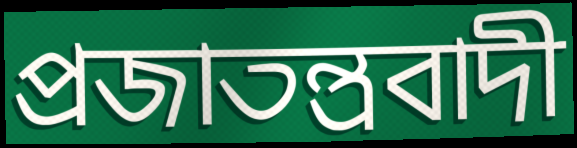
প্রজাতন্ত্রবাদী